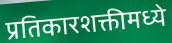
प्रतिकारशक्तीमध्ये